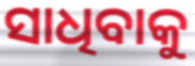
ସାଧିବାକୁ